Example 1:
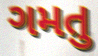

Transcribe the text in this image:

ગમતુ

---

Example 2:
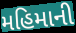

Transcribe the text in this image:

મહિમાની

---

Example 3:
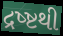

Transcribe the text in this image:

દ્રષ્ષ્ટથી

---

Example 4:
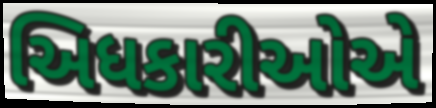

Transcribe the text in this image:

અિધકારીઓએ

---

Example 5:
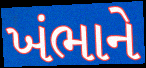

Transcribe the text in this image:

ખંભાને